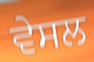
ਵੇਸਲ